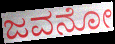
ಜವನೋ